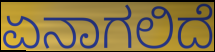
ಏನಾಗಲಿದೆ